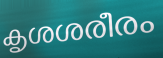
കൃശശരീരം